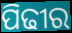
ପିଢୀର